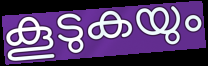
കൂടുകയും